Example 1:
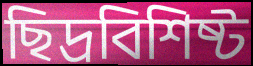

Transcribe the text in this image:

ছিদ্রবিশিষ্ট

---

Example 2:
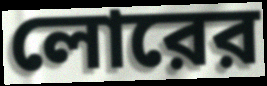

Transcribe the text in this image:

লোরের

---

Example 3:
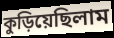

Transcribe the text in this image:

কুড়িয়েছিলাম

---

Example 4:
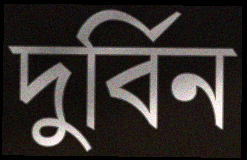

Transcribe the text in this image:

দুর্বিন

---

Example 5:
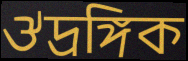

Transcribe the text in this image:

ঔদ্রঙ্গিক